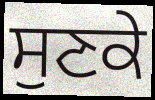
ਸੁਣਕੇ